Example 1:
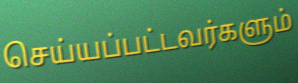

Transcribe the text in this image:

செய்யப்பட்டவர்களும்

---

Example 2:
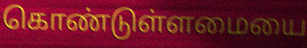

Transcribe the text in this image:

கொண்டுள்ளமையை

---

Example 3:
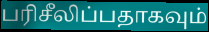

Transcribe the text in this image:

பரிசீலிப்பதாகவும்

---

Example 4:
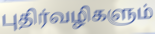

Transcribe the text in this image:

புதிர்வழிகளும்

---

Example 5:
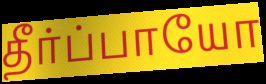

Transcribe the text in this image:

தீர்ப்பாயோ